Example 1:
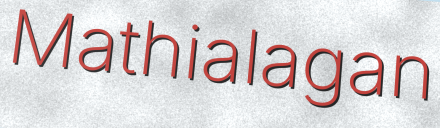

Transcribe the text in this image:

Mathialagan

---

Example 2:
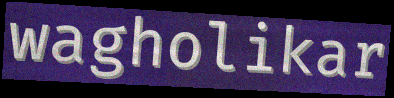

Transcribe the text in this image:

wagholikar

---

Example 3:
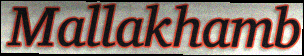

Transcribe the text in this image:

Mallakhamb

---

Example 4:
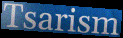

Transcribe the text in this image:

Tsarism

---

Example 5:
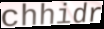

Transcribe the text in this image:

chhidr